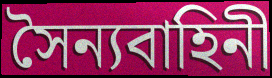
সৈন্যবাহিনী